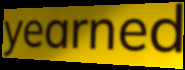
yearned